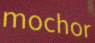
mochor